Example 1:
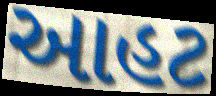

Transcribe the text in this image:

આહટ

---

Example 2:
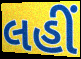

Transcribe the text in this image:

લહીં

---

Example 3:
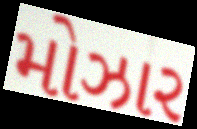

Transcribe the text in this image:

મોઝાર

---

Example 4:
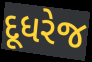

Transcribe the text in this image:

દૂધરેજ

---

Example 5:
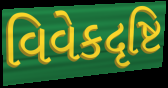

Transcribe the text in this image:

વિવેકદૃષ્ટિ